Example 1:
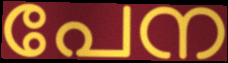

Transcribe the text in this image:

പേന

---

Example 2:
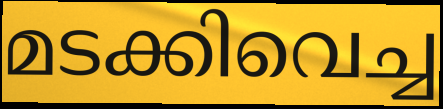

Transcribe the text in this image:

മടക്കിവെച്ച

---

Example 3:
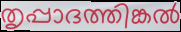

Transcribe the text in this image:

തൃപ്പാദത്തിങ്കൽ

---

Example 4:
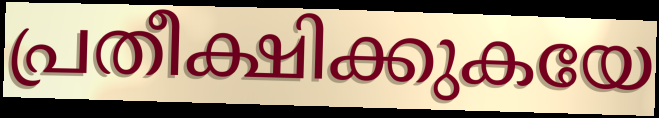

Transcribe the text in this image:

പ്രതീക്ഷിക്കുകയേ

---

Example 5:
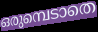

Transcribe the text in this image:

ഒരുമ്പെടാതെ